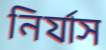
নির্যাস